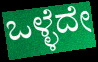
ಒಳ್ಳೆದೇ